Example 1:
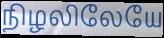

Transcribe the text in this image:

நிழலிலேயே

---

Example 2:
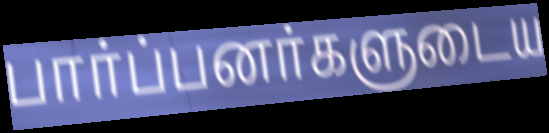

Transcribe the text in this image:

பார்ப்பனர்களுடைய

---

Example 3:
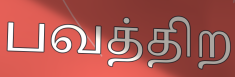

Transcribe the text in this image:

பவத்திற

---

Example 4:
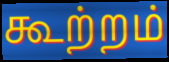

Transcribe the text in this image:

கூற்றம்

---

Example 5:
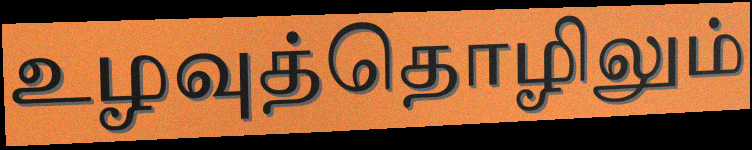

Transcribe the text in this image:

உழவுத்தொழிலும்